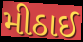
મીઠાઈ